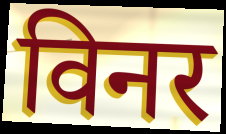
विनर